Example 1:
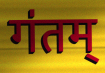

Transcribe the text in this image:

ग॑तम्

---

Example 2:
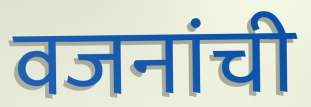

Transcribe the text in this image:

वजनांची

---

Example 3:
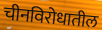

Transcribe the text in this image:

चीनविरोधातील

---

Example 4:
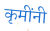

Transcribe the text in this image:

कृमींनी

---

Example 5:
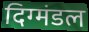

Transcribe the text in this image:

दिग्मंडल